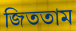
জিততাম